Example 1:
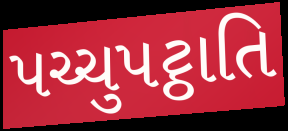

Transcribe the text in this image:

પચ્ચુપટ્ઠાતિ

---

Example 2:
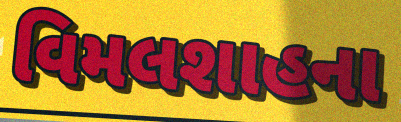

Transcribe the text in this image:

વિમલશાહના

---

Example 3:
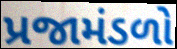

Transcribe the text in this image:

પ્રજામંડળો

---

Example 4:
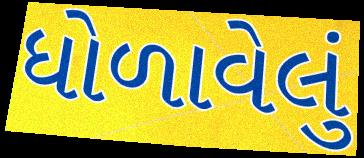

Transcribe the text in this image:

ધોળાવેલું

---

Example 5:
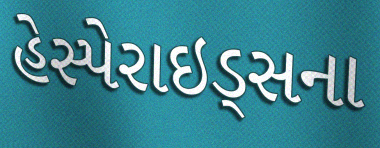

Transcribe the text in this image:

હેસ્પેરાઇડ્સના